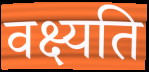
वक्ष्यति